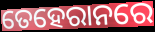
ତେହେରାନରେ